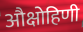
औक्षोहिणी